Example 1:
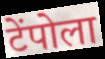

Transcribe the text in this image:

टेंपोला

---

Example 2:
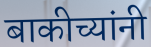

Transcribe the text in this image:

बाकीच्यांनी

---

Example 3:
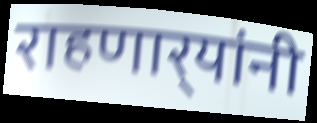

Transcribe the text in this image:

राहणार्‍यांनी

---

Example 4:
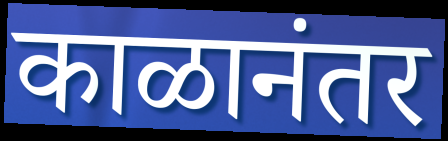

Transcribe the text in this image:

काळानंतर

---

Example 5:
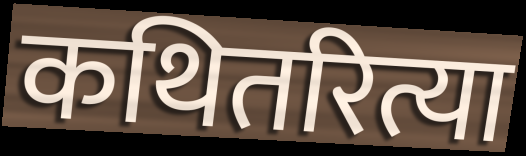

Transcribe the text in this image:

कथितरित्या